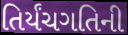
તિર્યંચગતિની